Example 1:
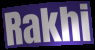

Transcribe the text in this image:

Rakhi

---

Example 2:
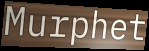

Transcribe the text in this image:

Murphet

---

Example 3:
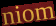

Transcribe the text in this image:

niom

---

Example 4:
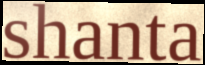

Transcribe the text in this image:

shanta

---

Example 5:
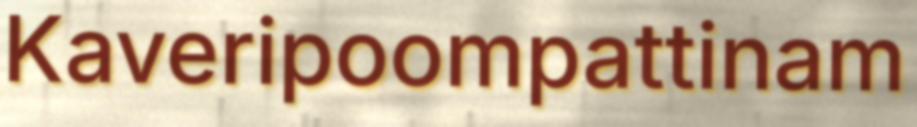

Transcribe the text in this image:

Kaveripoompattinam